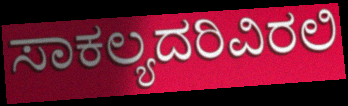
ಸಾಕಲ್ಯದರಿವಿರಲಿ